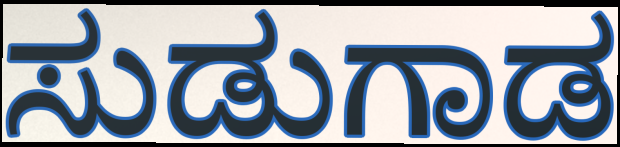
ಸುಡುಗಾಡ